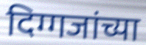
दिग्गजांच्या